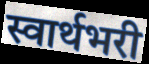
स्वार्थभरी